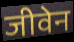
जीवेन